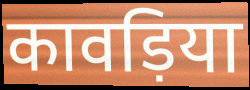
कावड़िया